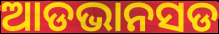
ଆଡଭାନସଡ